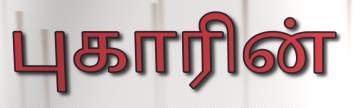
புகாரின்